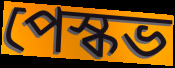
পেস্কভ